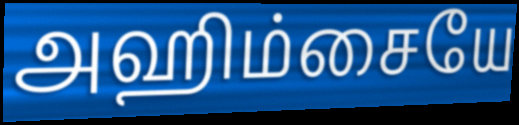
அஹிம்சையே